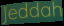
Jeddah